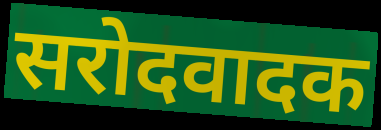
सरोदवादक